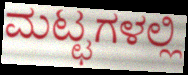
ಮಟ್ಟಗಳಲ್ಲಿ